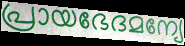
പ്രായഭേദമന്യേ